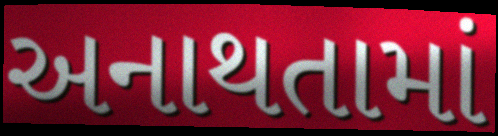
અનાથતામાં